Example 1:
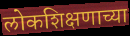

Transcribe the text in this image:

लोकशिक्षणाच्या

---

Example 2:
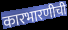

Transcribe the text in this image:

कारभारणीची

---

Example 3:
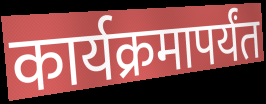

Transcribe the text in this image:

कार्यक्रमापर्यंत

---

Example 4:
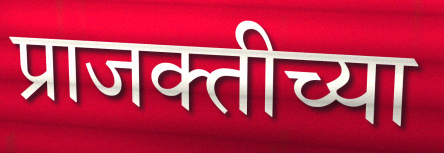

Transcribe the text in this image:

प्राजक्तीच्या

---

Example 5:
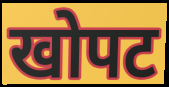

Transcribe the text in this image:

खोपट